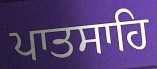
ਪਾਤਸਾਹਿ